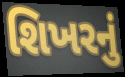
શિખરનું